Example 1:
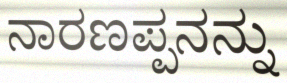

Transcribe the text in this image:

ನಾರಣಪ್ಪನನ್ನು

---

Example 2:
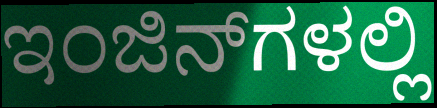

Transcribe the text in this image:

ಇಂಜಿನ್‌ಗಳಲ್ಲಿ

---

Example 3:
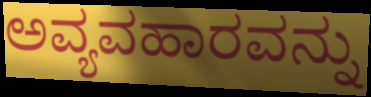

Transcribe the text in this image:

ಅವ್ಯವಹಾರವನ್ನು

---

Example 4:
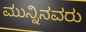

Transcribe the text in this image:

ಮುನ್ನಿನವರು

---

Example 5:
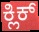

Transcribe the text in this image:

ಕ್ಲಿಕ್